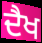
ਦੈਖ